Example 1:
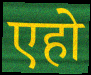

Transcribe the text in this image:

एहो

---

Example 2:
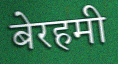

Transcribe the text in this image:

बेरहमी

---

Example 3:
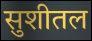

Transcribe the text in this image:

सुशीतल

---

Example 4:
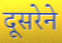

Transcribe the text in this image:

दूसरेने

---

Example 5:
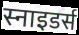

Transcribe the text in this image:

स्नाइडर्स